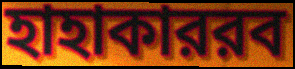
হাহাকাররব